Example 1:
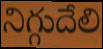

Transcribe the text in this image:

నిగ్గుదేలి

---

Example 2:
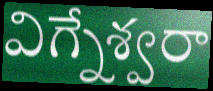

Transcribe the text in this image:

విగ్నేశ్వరా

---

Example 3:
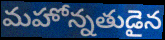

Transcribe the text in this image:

మహోన్నతుడైన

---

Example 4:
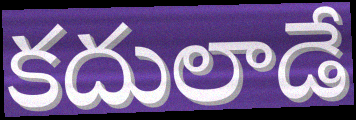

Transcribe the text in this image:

కదులాడే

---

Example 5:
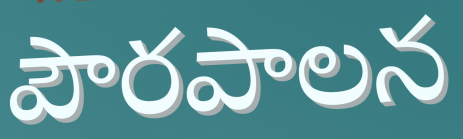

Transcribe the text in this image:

పౌరపాలన